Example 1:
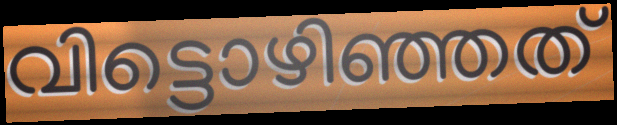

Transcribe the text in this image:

വിട്ടൊഴിഞ്ഞത്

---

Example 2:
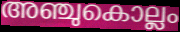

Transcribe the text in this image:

അഞ്ചുകൊല്ലം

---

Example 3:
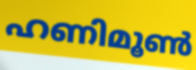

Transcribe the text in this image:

ഹണിമൂൺ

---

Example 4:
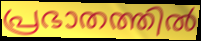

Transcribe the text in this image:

പ്രഭാതത്തിൽ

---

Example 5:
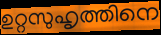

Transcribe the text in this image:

ഉറ്റസുഹൃത്തിനെ